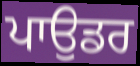
ਪਾਉਡਰ